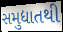
સમુદ્યાતથી